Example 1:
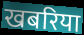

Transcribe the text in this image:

खबरिया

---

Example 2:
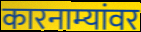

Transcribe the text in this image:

कारनाम्यांवर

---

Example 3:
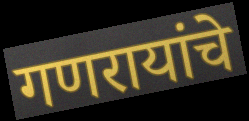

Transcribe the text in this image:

गणरायांचे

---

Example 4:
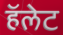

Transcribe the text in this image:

हॅलेट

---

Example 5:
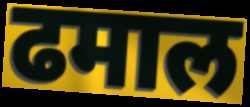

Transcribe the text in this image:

ढमाल